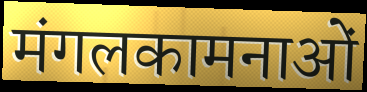
मंगलकामनाओं